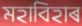
মহাবিহাৰ